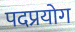
पदप्रयोग